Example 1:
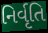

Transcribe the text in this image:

નિર્વૃતિ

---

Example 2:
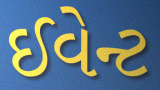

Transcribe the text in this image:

ઈવેન્ટ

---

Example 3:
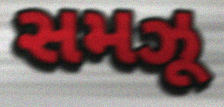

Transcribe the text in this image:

સમઝૂ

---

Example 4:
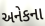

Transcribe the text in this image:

અનેકના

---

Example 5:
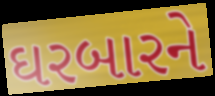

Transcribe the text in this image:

ઘરબારને